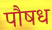
पौषध